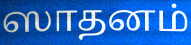
ஸாதனம்